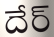
దేర్